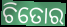
ଚିତୋର